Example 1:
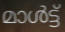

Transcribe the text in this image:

മാൾട്ട്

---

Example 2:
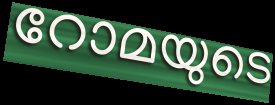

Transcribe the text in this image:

റോമയുടെ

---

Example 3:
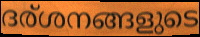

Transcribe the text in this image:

ദര്ശനങ്ങളുടെ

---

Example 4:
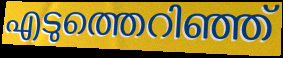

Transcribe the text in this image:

എടുത്തെറിഞ്ഞ്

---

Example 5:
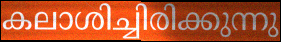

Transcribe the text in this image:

കലാശിച്ചിരിക്കുന്നു